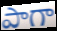
పాగా